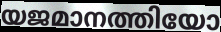
യജമാനത്തിയോ